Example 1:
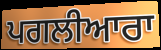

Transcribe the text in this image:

ਪਗਲੀਆਰਾ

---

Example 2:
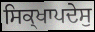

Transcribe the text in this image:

ਸਿਕ੍ਖਾਪਦੇਸੁ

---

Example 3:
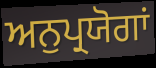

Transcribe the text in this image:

ਅਨੁਪ੍ਰਯੋਗਾਂ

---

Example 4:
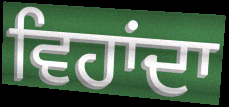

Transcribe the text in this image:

ਵਿਹਾਂਦਾ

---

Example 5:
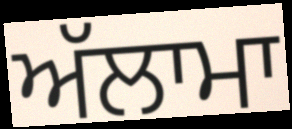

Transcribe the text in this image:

ਅੱਲਾਮਾ